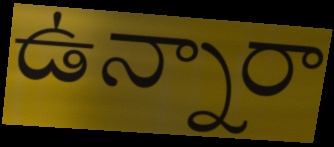
ఉన్నారా